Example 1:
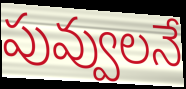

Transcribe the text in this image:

పువ్వులనే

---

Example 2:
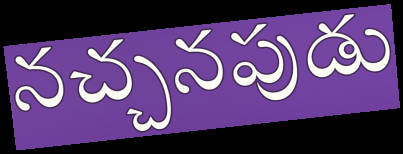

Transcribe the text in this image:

నచ్చనపుడు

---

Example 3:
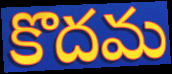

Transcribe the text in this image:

కొదమ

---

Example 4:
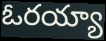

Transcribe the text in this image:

ఓరయ్యా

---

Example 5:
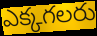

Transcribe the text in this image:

ఎక్కగలరు